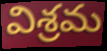
విశ్రమ